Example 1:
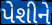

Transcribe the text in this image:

પેશીને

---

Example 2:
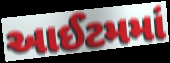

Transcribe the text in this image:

આઈટમમાં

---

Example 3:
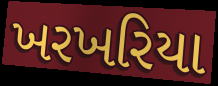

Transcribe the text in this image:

ખરખરિયા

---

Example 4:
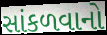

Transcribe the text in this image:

સાંકળવાનો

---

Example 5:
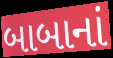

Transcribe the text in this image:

બાબાનાં